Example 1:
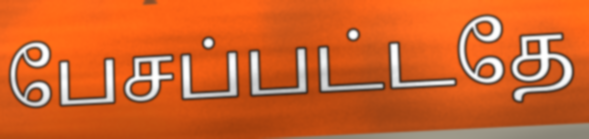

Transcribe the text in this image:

பேசப்பட்டதே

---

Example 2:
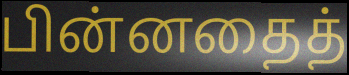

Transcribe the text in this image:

பின்னதைத்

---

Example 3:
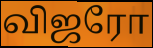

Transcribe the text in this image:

விஜரோ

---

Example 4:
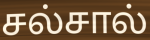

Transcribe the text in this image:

சல்சால்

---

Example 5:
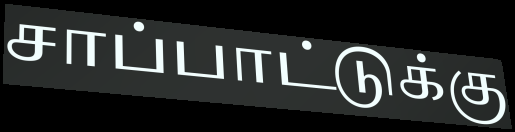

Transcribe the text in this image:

சாப்பாட்டுக்கு